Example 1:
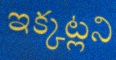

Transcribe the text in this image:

ఇక్కట్లని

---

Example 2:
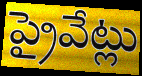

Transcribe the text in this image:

ప్రైవేట్లు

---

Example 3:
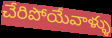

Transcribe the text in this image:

చేరిపోయేవాళ్ళు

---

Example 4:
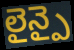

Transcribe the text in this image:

లైన్పై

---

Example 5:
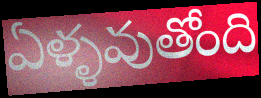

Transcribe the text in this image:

ఏళ్ళవుతోంది